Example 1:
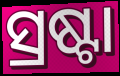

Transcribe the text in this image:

ସ୍ରଷ୍ଟା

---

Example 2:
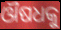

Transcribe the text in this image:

ଔଷଧକୁ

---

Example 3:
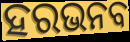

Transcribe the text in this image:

ହରଭନବ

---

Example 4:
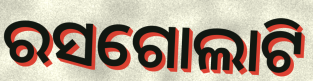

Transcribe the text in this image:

ରସଗୋଲାଟି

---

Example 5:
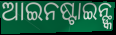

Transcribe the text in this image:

ଆଇନଷ୍ଟାଇନ୍ଙ୍କ